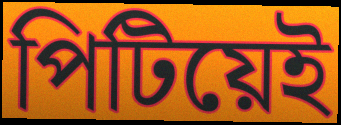
পিটিয়েই